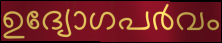
ഉദ്യോഗപർവം